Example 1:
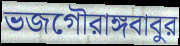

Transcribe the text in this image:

ভজগৌরাঙ্গবাবুর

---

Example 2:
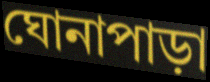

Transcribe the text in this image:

ঘোনাপাড়া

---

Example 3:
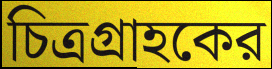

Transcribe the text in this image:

চিত্রগ্রাহকের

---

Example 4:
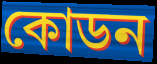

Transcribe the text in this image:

কোডন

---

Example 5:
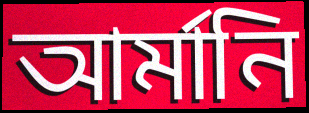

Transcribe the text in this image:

আর্মানি